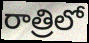
రాత్రిలో